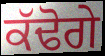
ਕੱਢੋਗੇ